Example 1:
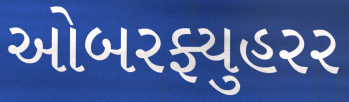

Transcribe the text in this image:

ઓબરફ્યુહરર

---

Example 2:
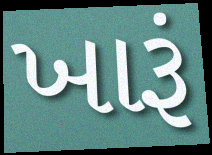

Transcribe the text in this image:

ખારૂં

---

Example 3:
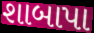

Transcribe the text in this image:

શાબાપા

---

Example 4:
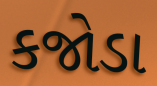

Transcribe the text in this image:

કજોડા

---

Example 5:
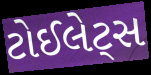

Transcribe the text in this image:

ટોઈલેટ્સ